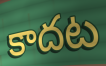
కాదట